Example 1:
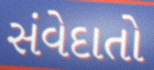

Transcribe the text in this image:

સંવેદાતો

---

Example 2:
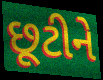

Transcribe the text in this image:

છૂટીને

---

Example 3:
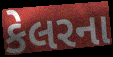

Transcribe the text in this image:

કેલરના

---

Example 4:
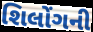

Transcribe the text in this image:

શિલોંગની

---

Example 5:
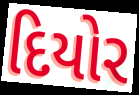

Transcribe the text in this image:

દિયોર